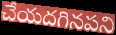
చేయదగినపని